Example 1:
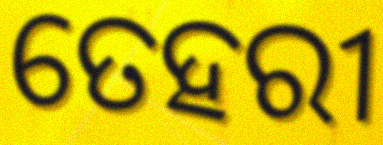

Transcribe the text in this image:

ତେହରୀ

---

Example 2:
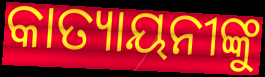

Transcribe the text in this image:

କାତ୍ୟାୟନୀଙ୍କୁ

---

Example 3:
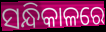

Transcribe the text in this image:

ସନ୍ଧିକାଳରେ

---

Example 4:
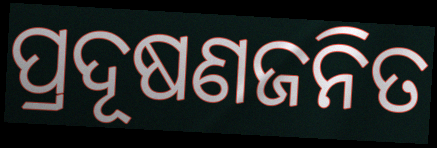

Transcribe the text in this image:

ପ୍ରଦୂଷଣଜନିତ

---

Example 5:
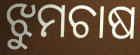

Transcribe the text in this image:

ଝୁମଚାଷ